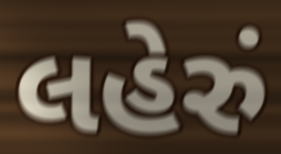
લહેરું